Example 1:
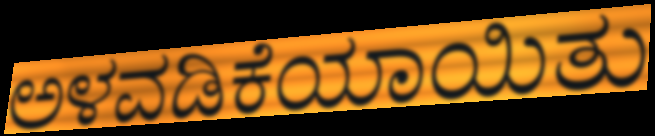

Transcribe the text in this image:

ಅಳವಡಿಕೆಯಾಯಿತು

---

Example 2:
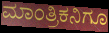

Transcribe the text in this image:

ಮಾಂತ್ರಿಕನಿಗೂ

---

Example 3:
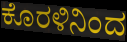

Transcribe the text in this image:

ಕೊರಳಿನಿಂದ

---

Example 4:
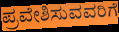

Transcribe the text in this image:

ಪ್ರವೇಶಿಸುವವರಿಗೆ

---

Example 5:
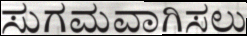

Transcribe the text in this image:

ಸುಗಮವಾಗಿಸಲು